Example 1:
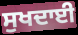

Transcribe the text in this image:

ਸੁਖਦਾਈ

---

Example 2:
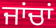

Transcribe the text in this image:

ਜਾਂਚਾਂ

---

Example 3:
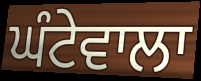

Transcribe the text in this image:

ਘੰਟੇਵਾਲਾ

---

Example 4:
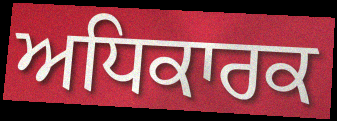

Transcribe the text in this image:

ਅਧਿਕਾਰਕ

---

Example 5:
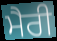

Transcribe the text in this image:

ਮੈਰੀ